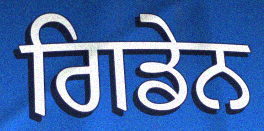
ਗਿਡੇਨ